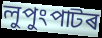
লুপুংপাটৰ